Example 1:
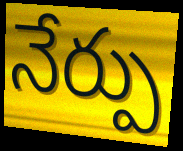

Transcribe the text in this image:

నేర్పు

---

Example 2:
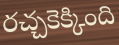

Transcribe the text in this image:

రచ్చకెక్కింది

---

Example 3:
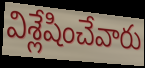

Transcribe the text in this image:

విశ్లేషించేవారు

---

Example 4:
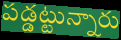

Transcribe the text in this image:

పడ్డట్టున్నారు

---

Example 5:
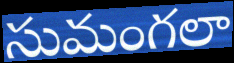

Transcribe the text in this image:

సుమంగలా